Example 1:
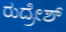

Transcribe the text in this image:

ರುದ್ರೇಶ್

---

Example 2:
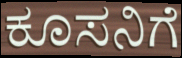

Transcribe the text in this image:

ಕೂಸನಿಗೆ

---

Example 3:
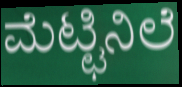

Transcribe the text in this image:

ಮೆಟ್ಟಿನಿಲೆ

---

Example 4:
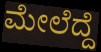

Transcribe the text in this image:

ಮೇಲೆದ್ದೆ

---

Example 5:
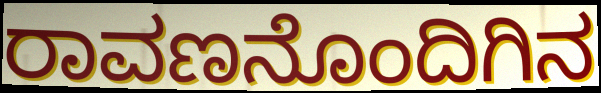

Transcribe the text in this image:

ರಾವಣನೊಂದಿಗಿನ